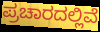
ಪ್ರಚಾರದಲ್ಲಿವೆ